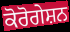
ਕੋਰੋਗੇਸ਼ਨ